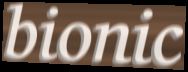
bionic